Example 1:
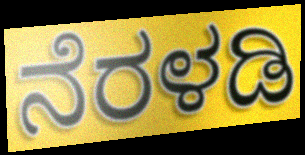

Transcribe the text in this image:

ನೆರಳಡಿ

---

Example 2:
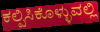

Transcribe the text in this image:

ಕಲ್ಪಿಸಿಕೊಳ್ಳುವಲ್ಲಿ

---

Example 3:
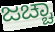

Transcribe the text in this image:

ಜಚ್ಚಾ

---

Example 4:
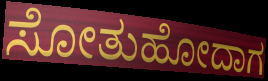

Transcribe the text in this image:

ಸೋತುಹೋದಾಗ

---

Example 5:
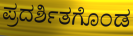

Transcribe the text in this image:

ಪ್ರದರ್ಶಿತಗೊಂಡ